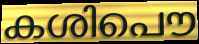
കശിപൌ